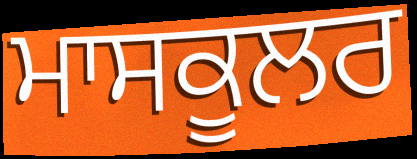
ਮਾਸਕੂਲਰ